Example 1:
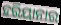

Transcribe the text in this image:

ହରିୟାନାର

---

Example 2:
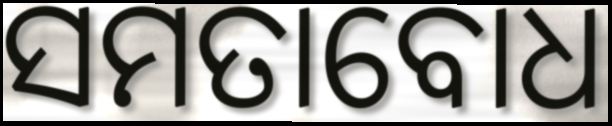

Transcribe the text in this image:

ସମତାବୋଧ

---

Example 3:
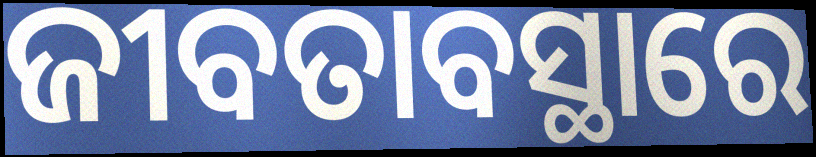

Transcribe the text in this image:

ଜୀବତାବସ୍ଥାରେ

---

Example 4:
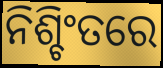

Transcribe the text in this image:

ନିଶ୍ଚିଂତରେ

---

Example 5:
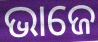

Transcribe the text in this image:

ଭାଜେ